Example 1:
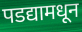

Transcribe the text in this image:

पडद्यामधून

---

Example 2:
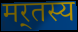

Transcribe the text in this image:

मर्तस्य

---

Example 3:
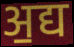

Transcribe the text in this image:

अ॒द्य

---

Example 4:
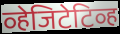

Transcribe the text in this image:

व्हेजिटेटिव्ह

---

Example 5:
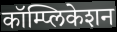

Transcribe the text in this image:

कॉम्प्लिकेशन